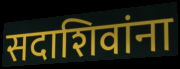
सदाशिवांना